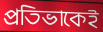
প্রতিভাকেই